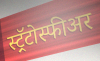
स्ट्रॅटोस्फीअर